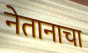
नेतानाचा